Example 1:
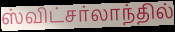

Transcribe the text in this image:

ஸ்விட்சர்லாந்தில்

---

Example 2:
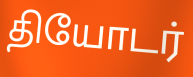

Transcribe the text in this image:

தியோடர்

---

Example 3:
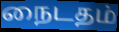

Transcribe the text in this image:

நைடதம்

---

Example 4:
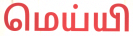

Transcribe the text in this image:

மெய்யி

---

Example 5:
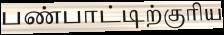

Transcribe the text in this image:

பண்பாட்டிற்குரிய